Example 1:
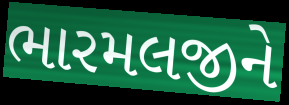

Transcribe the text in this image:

ભારમલજીને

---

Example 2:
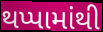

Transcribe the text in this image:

થપ્પામાંથી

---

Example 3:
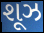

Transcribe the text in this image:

શૂઝ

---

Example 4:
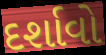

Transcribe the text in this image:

દર્શાવો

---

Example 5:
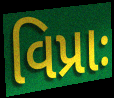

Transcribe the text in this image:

વિપ્રાઃ